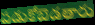
పడుకోబెడతారు